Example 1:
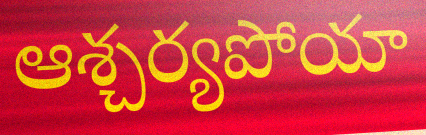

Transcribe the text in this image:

ఆశ్చర్యపోయా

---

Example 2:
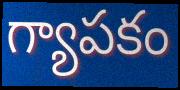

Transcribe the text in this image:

గ్యాపకం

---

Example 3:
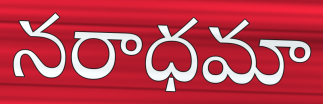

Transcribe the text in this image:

నరాధమా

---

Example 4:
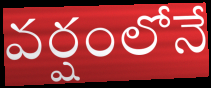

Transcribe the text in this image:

వర్షంలోనే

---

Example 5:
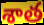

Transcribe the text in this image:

శాత